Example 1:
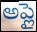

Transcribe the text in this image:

అప్లై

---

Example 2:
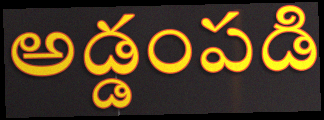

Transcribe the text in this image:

అడ్డంపడి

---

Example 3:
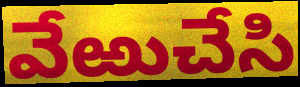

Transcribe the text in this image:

వేఱుచేసి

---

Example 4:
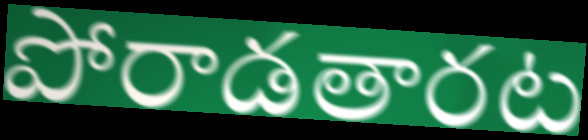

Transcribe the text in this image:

పోరాడతారట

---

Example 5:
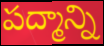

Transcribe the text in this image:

పద్మాన్ని